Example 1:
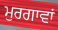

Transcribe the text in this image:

ਮੁਰਗਾਵਾਂ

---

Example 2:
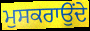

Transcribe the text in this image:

ਮੁਸਕਰਾਉਂਦੇ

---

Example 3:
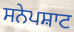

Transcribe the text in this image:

ਸਨੇਪਸ਼ਾਟ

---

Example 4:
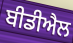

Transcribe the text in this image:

ਬੀਡੀਐਲ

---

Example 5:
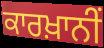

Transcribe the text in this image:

ਕਾਰਖ਼ਾਨੀਂ